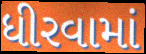
ધીરવામાં